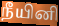
நீயினி